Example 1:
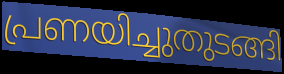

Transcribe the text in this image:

പ്രണയിച്ചുതുടങ്ങി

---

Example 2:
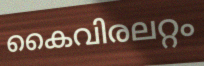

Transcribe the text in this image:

കൈവിരലറ്റം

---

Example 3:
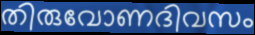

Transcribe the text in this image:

തിരുവോണദിവസം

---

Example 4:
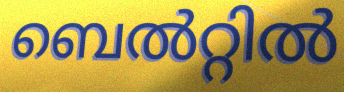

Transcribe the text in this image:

ബെൽറ്റിൽ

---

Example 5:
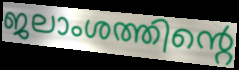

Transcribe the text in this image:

ജലാംശത്തിന്റെ